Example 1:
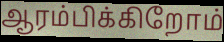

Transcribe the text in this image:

ஆரம்பிக்கிறோம்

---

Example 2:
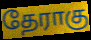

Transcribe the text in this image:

தேராகு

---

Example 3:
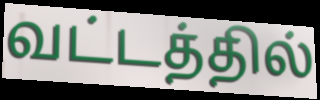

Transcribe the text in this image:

வட்டத்தில்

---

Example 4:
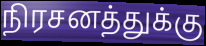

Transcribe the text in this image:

நிரசனத்துக்கு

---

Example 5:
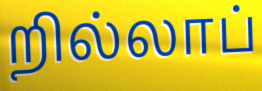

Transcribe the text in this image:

றில்லாப்